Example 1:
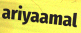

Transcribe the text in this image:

ariyaamal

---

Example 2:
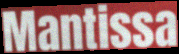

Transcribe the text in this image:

Mantissa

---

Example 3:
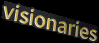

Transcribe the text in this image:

visionaries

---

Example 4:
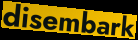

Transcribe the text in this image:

disembark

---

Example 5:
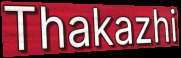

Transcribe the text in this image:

Thakazhi